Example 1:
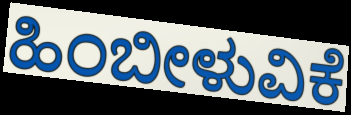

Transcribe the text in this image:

ಹಿಂಬೀಳುವಿಕೆ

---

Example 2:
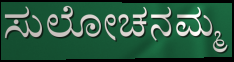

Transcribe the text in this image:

ಸುಲೋಚನಮ್ಮ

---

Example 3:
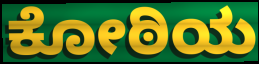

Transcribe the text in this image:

ಕೋಠಿಯ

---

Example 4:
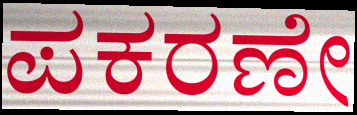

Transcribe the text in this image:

ಪಕರಣೇ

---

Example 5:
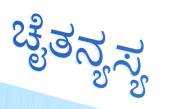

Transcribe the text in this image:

ಚೈತನ್ಯಸ್ಯ